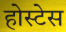
होस्टेस